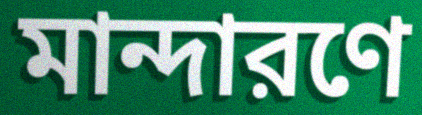
মান্দারণে